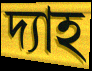
দ্যাহ